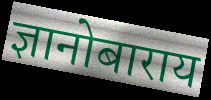
ज्ञानोबाराय